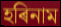
হৰিনাম